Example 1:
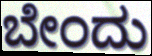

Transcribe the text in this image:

ಬೇಂದು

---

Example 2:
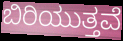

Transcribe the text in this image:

ಬಿರಿಯುತ್ತವೆ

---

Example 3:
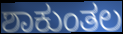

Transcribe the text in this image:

ಶಾಕುಂತಲ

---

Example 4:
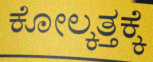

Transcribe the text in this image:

ಕೋಲ್ಕತ್ತಕ್ಕೆ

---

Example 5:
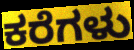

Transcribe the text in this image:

ಕರೆಗಳು